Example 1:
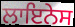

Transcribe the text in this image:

ਲਾਇਨੇਸ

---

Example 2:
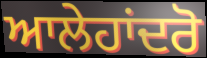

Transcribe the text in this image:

ਆਲੇਹਾਂਦਰੋ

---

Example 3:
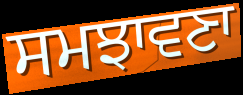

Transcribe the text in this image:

ਸਮਝਾਵਣਾ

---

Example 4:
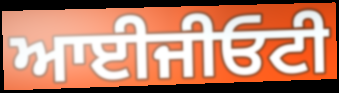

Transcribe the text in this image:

ਆਈਜੀਓਟੀ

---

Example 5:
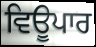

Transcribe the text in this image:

ਵਿਊਪਾਰ